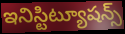
ఇనిస్టిట్యూషన్స్